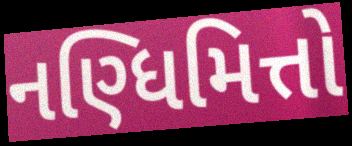
નણ્ધિમિત્તો